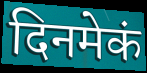
दिनमेकं